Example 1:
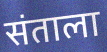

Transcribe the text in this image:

संताला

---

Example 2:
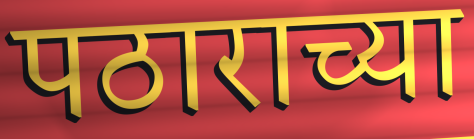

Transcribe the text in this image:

पठाराच्या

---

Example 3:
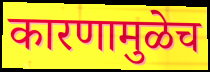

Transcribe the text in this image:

कारणामुळेच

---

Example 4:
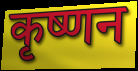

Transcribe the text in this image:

कृष्णन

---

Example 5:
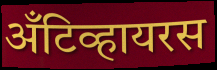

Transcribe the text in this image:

अँटिव्हायरस